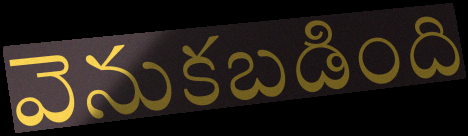
వెనుకబడింది